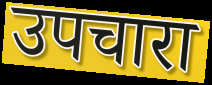
उपचारा